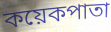
কয়েকপাতা